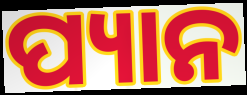
ପ୍ୟାନ